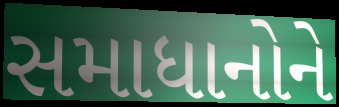
સમાધાનોને